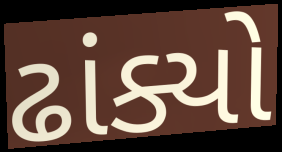
ઢાંક્યો